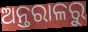
ଅନ୍ତରାଳରୁ